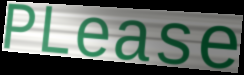
PLease